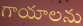
గాయాలను